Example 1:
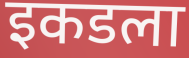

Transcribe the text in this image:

इकडला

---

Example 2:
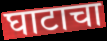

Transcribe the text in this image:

घाटाचा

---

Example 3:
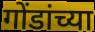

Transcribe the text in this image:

गोंडांच्या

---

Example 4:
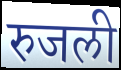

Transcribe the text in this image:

रुजली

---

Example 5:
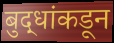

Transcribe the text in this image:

बुद्धांकडून